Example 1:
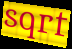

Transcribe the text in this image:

sqrt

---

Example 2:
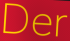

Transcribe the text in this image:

Der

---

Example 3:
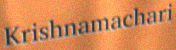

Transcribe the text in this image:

Krishnamachari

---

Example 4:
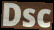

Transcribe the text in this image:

Dsc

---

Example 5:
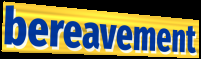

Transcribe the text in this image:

bereavement